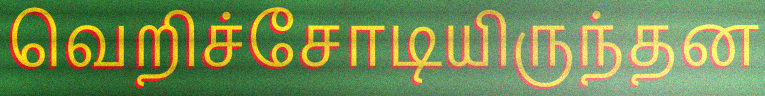
வெறிச்சோடியிருந்தன